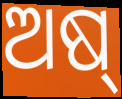
ଅଷ୍